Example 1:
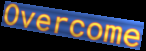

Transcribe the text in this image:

Overcome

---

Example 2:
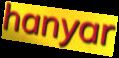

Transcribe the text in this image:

hanyar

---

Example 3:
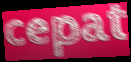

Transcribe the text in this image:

cepat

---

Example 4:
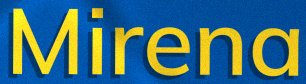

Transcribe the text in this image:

Mirena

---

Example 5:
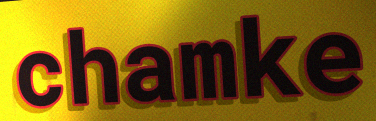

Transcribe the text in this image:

chamke